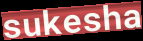
sukesha